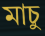
মাচু